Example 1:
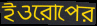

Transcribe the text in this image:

ইওরোপের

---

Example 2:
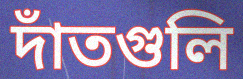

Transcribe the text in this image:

দাঁতগুলি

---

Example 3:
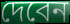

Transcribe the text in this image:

দেবেন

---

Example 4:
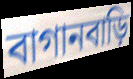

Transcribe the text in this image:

বাগানবাড়ি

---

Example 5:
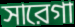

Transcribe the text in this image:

সারেগা